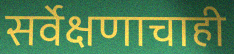
सर्वेक्षणाचाही